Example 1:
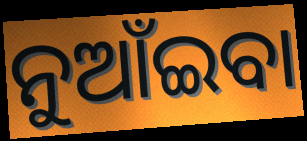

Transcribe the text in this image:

ନୁଆଁଇବା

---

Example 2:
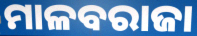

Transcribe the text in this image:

ମାଳବରାଜା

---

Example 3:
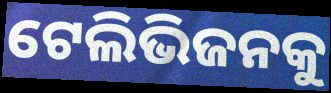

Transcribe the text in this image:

ଟେଲିଭିଜନକୁ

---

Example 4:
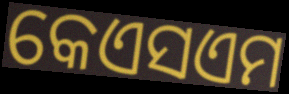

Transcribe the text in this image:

କେଏସଏମ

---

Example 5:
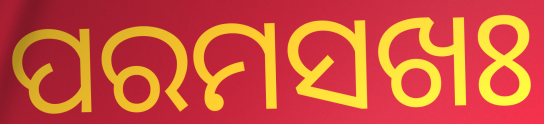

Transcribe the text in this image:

ପରମସଖଃ